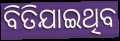
ବିତିଯାଇଥିବ